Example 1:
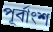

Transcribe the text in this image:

পূৰ্বাংশ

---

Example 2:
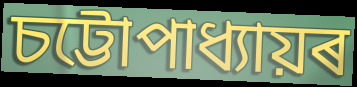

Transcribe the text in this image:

চট্টোপাধ্যায়ৰ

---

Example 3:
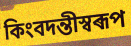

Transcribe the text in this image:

কিংবদন্তীস্বৰূপ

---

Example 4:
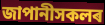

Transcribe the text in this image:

জাপানীসকলৰ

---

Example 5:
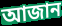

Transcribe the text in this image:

আজান